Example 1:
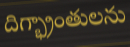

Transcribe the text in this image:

దిగ్భ్రాంతులను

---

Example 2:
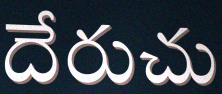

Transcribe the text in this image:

దేరుచు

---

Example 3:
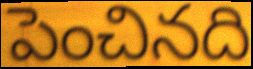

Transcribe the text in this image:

పెంచినది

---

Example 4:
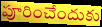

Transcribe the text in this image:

పూరించేందుకు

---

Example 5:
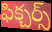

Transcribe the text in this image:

ఫిక్చర్స్